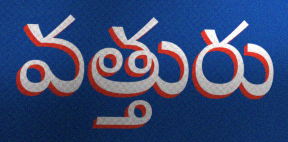
వత్తురు